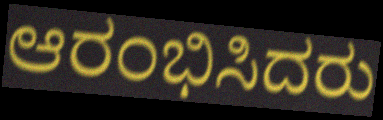
ಆರಂಭಿಸಿದರು